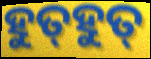
ହୁତ୍‌ହୁତ୍